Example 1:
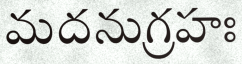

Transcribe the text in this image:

మదనుగ్రహః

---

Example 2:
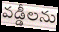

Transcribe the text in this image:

వడ్డీలను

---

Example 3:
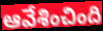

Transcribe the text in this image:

ఆవేశించింది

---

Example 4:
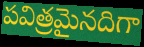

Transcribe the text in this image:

పవిత్రమైనదిగా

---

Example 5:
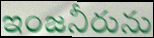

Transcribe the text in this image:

ఇంజనీరును